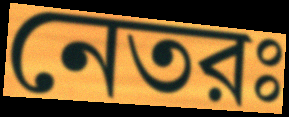
নেতরঃ